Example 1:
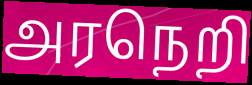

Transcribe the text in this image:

அரநெறி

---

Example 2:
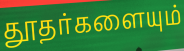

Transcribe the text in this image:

தூதர்களையும்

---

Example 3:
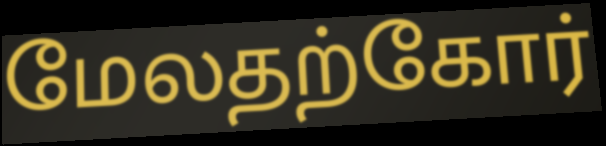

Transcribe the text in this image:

மேலதற்கோர்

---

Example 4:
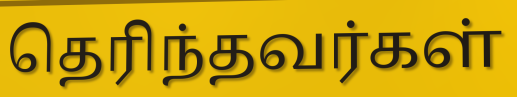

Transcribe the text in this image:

தெரிந்தவர்கள்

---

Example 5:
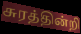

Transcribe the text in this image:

சுரத்தின்றி